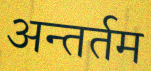
अन्तर्तम